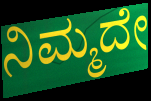
ನಿಮ್ಮದೇ